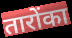
तारोंका